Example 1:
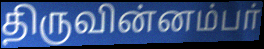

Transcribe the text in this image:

திருவின்னம்பர்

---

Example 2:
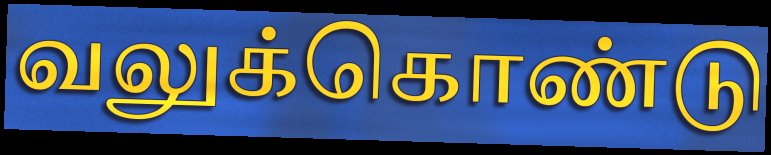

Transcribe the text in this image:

வலுக்கொண்டு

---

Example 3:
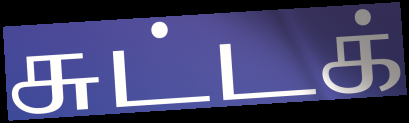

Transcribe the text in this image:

சுட்டக்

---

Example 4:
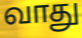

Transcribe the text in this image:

வாது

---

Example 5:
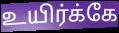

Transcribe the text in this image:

உயிர்க்கே